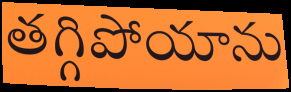
తగ్గిపోయాను